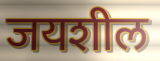
जयशील